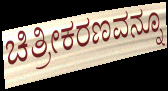
ಚಿತ್ರೀಕರಣವನ್ನೂ